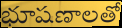
భూషణాలతో